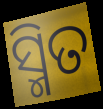
ସ୍ମିତ